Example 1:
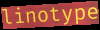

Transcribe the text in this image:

linotype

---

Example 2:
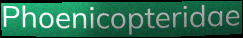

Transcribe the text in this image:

Phoenicopteridae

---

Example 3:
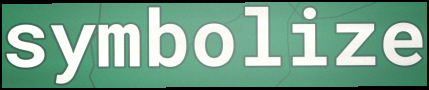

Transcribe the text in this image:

symbolize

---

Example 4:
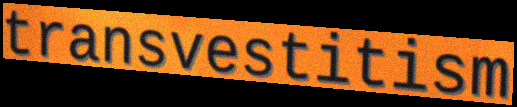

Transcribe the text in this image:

transvestitism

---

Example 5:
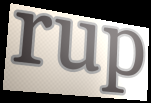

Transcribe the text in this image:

rup